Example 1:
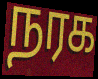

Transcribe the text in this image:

நரக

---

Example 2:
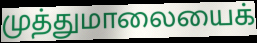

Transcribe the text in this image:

முத்துமாலையைக்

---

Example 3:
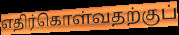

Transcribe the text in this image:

எதிர்கொள்வதற்குப்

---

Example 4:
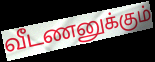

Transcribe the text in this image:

வீடணனுக்கும்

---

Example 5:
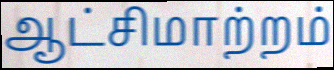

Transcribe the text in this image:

ஆட்சிமாற்றம்